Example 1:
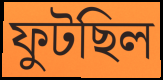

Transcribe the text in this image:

ফুটছিল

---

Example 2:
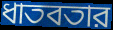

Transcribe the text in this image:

ধাতবতার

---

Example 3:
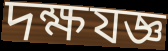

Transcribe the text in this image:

দক্ষযজ্ঞ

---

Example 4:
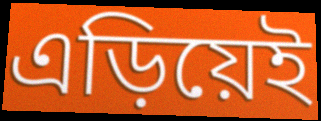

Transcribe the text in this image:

এড়িয়েই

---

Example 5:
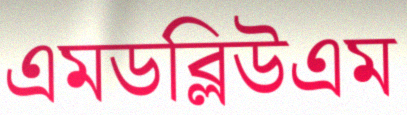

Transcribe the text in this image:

এমডব্লিউএম